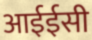
आईईसी